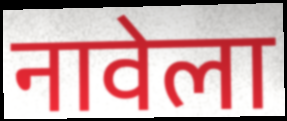
नावेला